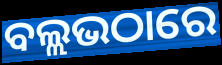
ବଲ୍ଲଭଠାରେ